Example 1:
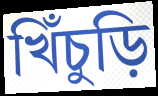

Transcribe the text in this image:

খিঁচুড়ি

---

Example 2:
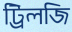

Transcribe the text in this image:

ট্রিলজি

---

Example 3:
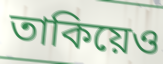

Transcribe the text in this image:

তাকিয়েও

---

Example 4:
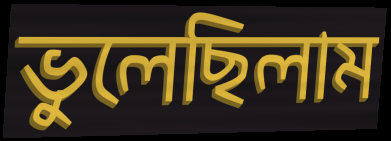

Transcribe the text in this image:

ভুলেছিলাম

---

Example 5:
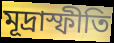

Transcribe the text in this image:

মূদ্রাস্ফীতি